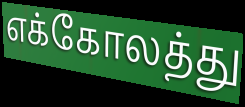
எக்கோலத்து